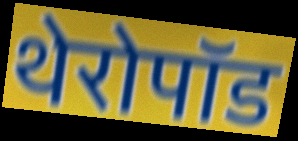
थेरोपॉड